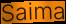
Saima